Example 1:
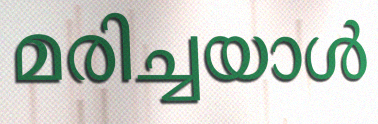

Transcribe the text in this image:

മരിച്ചയാൾ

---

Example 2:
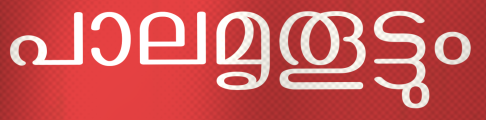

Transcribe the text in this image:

പാലമൃതൂട്ടും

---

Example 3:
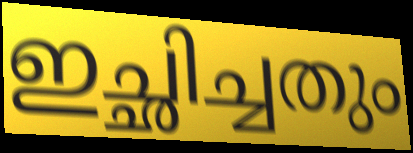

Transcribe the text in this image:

ഇച്ഛിച്ചതും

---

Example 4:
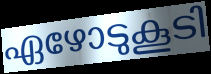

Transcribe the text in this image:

ഏഴോടുകൂടി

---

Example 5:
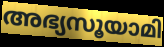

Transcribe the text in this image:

അഭ്യസൂയാമി